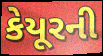
કેયૂરની